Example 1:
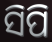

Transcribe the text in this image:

ସିପି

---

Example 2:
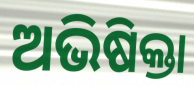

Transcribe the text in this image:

ଅଭିଷିକ୍ତା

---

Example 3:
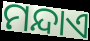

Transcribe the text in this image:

ମନ୍ଦାଏ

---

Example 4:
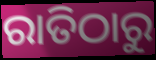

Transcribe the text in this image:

ରାତିଠାରୁ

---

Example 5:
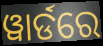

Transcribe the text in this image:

ୱାର୍ଡରେ